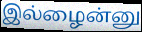
இல்ழைன்னு